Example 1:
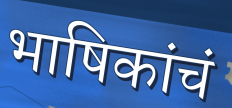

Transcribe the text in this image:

भाषिकांचं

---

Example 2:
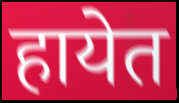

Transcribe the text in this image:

हायेत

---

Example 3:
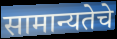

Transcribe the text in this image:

सामान्यतेचे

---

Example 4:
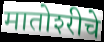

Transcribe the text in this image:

मातोश्रीचे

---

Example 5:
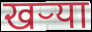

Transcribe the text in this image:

खऱ्या